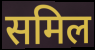
समिल